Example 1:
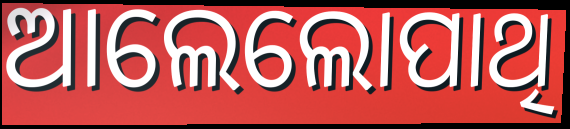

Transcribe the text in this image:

ଆଲେଲୋପାଥି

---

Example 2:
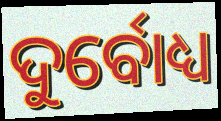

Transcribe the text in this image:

ଦୁର୍ବୋଧ୍ୟ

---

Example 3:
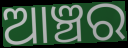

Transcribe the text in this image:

ଆଞ୍ଚର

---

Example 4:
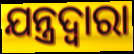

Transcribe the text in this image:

ଯନ୍ତ୍ରଦ୍ବାରା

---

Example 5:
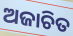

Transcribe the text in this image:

ଅଜାଚିତ